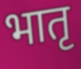
भातृ